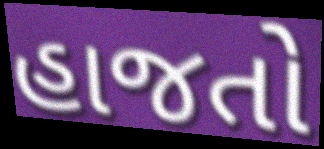
હાજતો